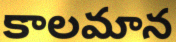
కాలమాన